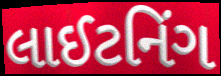
લાઈટનિંગ